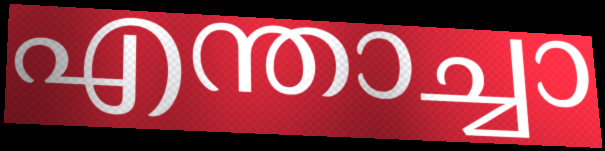
എന്താച്ചാ